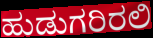
ಹುಡುಗರಿರಲಿ